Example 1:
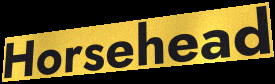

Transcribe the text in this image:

Horsehead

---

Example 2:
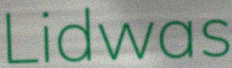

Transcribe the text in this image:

Lidwas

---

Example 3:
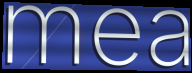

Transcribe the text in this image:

mea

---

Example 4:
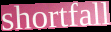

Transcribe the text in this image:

shortfall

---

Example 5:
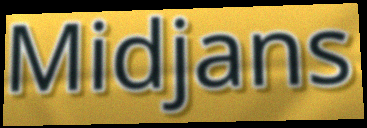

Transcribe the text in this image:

Midjans